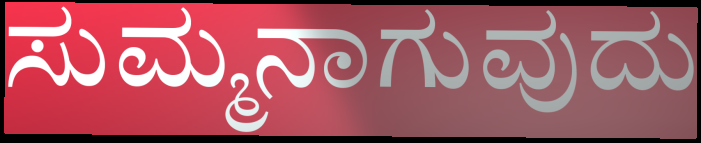
ಸುಮ್ಮನಾಗುವುದು